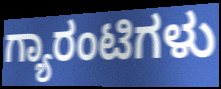
ಗ್ಯಾರಂಟಿಗಳು